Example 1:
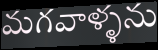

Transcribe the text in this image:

మగవాళ్ళను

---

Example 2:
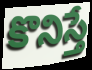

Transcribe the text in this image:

కొనిస్తే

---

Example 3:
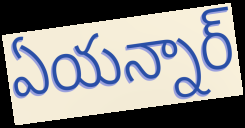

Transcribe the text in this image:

ఏయన్నార్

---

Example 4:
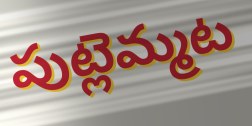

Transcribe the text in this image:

పుట్లెమ్మట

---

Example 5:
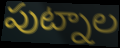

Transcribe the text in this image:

పుట్నాల